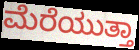
ಮೆರೆಯುತ್ತಾ